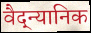
वैद्न्यानिक